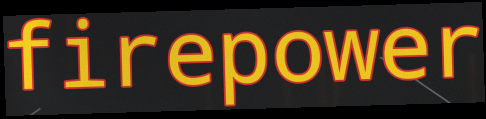
firepower